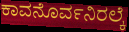
ಕಾವನೊರ್ವನಿರಲ್ಕೆ